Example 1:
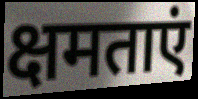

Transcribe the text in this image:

क्षमताएं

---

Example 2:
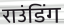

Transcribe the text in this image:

राउंडिंग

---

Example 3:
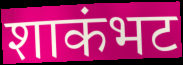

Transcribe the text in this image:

शाकंभट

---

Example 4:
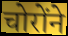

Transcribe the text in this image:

चोरोंने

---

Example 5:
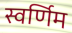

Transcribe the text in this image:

स्‍वर्णिम